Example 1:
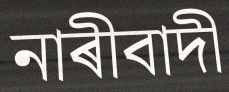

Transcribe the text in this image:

নাৰীবাদী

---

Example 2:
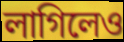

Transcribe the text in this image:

লাগিলেও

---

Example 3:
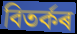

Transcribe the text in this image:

বিতৰ্কৰ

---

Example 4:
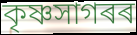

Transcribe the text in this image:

কৃষ্ণসাগৰৰ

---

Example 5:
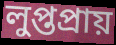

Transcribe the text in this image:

লুপ্তপ্ৰায়